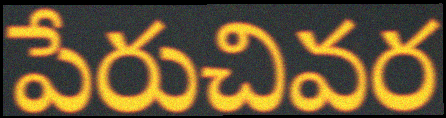
పేరుచివర